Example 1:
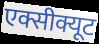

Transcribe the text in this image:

एक्सीक्यूट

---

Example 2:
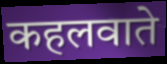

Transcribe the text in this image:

कहलवाते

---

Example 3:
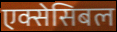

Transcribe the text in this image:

एक्सेसिबल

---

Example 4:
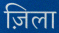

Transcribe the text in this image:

ज़िला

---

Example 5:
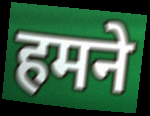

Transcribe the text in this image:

हमने